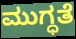
ಮುಗ್ಧತೆ